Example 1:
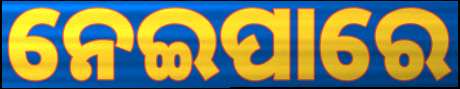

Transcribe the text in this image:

ନେଇପାରେ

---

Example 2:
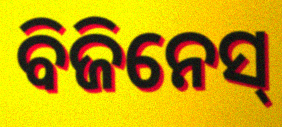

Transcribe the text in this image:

ବିଜିନେସ୍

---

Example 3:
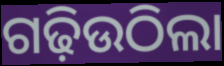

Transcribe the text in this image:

ଗଢ଼ିଉଠିଲା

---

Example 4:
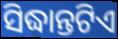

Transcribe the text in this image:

ସିଦ୍ଧାନ୍ତଟିଏ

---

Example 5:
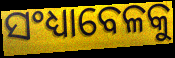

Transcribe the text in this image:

ସଂଧ୍ୟାବେଳକୁ